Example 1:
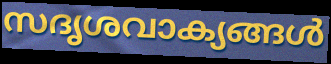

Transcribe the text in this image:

സദൃശവാക്യങ്ങൾ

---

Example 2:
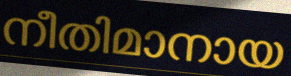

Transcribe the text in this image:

നീതിമാനായ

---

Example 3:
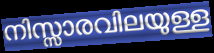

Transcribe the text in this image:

നിസ്സാരവിലയുള്ള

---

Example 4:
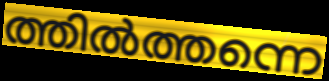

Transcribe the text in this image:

ത്തിൽത്തന്നെ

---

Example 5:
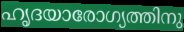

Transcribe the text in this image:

ഹൃദയാരോഗ്യത്തിനു